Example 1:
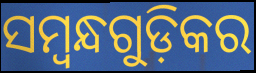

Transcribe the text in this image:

ସମ୍ବନ୍ଧଗୁଡ଼ିକର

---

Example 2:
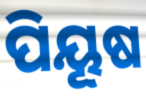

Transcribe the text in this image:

ପିୟୂଷ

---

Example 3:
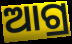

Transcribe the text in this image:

ଆଗ୍ର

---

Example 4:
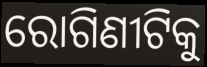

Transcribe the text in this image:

ରୋଗିଣୀଟିକୁ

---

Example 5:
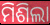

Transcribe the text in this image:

ମିଶିଲା